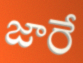
జారే